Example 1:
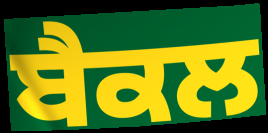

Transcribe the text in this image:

ਬੈਕਲ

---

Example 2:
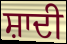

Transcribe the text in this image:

ਸ਼ਾਦੀ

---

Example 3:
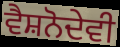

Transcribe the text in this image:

ਵੈਸ਼ਨੋਦੇਵੀ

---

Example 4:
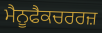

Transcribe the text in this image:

ਮੈਨੂਫੈਕਚਰਰਜ਼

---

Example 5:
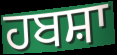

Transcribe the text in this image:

ਹਬਸ਼ਾ